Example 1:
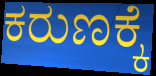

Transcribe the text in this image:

ಕರುಣಕ್ಕೆ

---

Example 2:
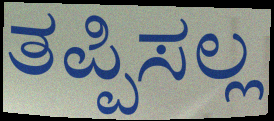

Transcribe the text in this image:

ತಪ್ಪಿಸಲ್ಲ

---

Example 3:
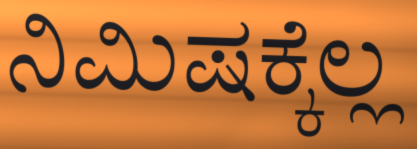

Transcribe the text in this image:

ನಿಮಿಷಕ್ಕೆಲ್ಲ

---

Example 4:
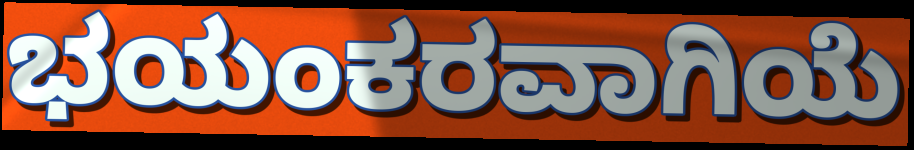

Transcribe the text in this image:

ಭಯಂಕರವಾಗಿಯೆ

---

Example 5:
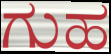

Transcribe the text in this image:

ಗುಹ